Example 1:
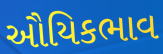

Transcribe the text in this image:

ઔયિકભાવ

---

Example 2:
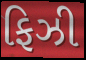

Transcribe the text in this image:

ફિઝી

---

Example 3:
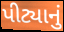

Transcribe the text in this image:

પીટ્યાનું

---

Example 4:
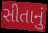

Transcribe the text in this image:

સીતાનું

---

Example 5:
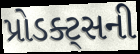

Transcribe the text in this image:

પ્રોડક્ટ્સની